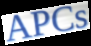
APCs